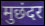
मुछंदर